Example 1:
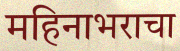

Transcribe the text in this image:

महिनाभराचा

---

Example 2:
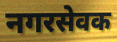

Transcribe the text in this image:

नगरसेवक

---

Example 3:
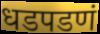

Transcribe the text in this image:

धडपडणं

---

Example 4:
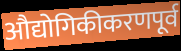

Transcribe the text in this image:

औद्योगिकीकरणपूर्व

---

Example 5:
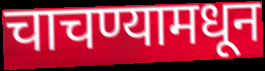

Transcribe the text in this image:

चाचण्यामधून